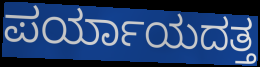
ಪರ್ಯಾಯದತ್ತ